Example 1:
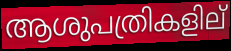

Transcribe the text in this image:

ആശുപത്രികളില്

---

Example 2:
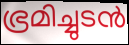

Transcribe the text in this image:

ഭ്രമിച്ചുടൻ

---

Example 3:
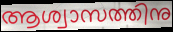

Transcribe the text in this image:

ആശ്വാസത്തിനു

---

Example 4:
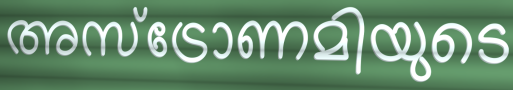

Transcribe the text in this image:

അസ്ട്രോണമിയുടെ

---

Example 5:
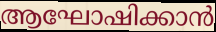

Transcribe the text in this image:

ആഘോഷിക്കാൻ